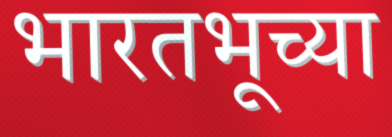
भारतभूच्या